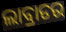
ଲାବ୍ରାଡର